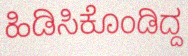
ಹಿಡಿಸಿಕೊಂಡಿದ್ದ